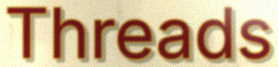
Threads